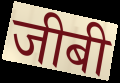
जीबी